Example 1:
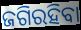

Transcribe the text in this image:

ଜଗିରହିବା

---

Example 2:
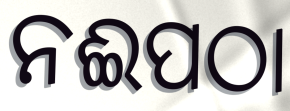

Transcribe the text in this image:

ନଈପଠା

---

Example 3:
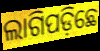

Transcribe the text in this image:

ଲାଗିପଡ଼ିଛେ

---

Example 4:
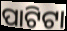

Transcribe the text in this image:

ପାଟିଟା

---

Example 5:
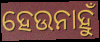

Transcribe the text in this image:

ହେଉନାହୁଁ